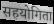
सहयोगिता